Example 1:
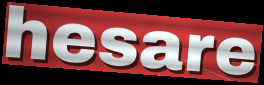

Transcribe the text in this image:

hesare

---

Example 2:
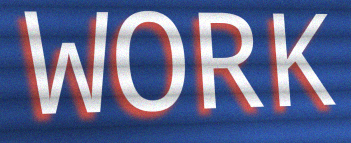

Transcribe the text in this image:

WORK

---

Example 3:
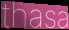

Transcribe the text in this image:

thasa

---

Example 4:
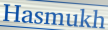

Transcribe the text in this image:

Hasmukh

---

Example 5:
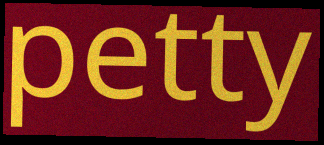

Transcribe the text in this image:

petty